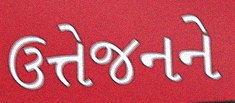
ઉત્તેજનને